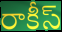
రాకీస్